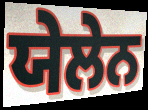
ਯੇਲੇਨ